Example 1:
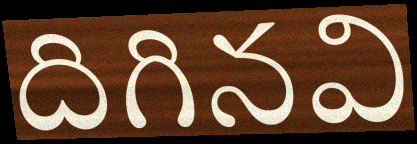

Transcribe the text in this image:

దిగినవి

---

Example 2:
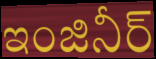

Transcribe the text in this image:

ఇంజినీర్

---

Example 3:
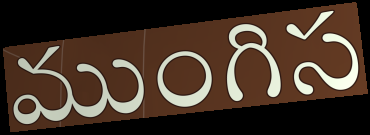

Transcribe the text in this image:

ముంగిస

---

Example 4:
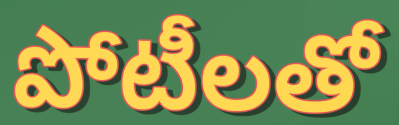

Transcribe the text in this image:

పోటీలతో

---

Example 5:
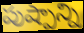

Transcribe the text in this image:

పుష్పాన్ని